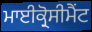
ਮਾਈਕ੍ਰੋਸੀਮੈਂਟ